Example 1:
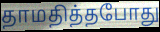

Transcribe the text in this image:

தாமதித்தபோது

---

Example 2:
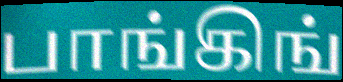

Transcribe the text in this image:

பாங்கிங்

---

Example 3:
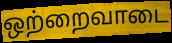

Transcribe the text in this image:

ஒற்றைவாடை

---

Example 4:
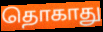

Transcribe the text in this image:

தொகாது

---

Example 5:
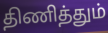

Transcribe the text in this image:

திணித்தும்